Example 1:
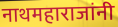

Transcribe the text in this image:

नाथमहाराजांनी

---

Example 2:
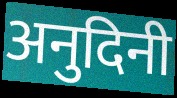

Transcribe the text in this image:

अनुदिनी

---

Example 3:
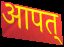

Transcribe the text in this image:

आपत्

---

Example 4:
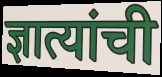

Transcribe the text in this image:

ज्ञात्यांची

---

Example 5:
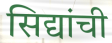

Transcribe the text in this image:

सिद्यांची